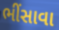
ભીંસાવા